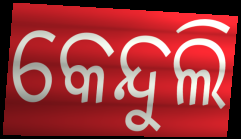
କେନ୍ଦୁଲି